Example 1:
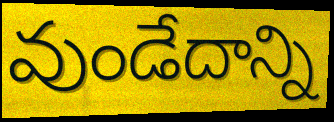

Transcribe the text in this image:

వుండేదాన్ని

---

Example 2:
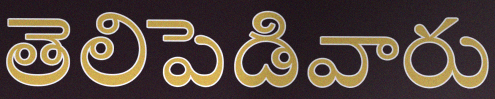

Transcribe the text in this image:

తెలిపెడివారు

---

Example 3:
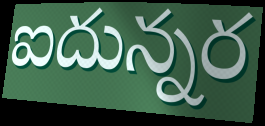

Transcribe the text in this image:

ఐదున్నర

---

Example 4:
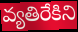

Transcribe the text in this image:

వ్యతిరేకిని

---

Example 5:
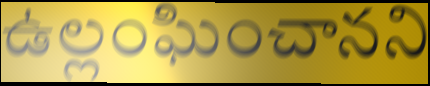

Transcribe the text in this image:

ఉల్లంఘించానని